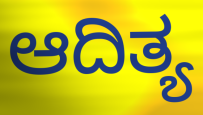
ಆದಿತ್ಯ